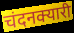
चंदनक्यारी